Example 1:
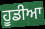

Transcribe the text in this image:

ਹੂਡੀਆ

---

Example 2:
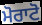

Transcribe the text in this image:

ਮੋਰਾਟੋ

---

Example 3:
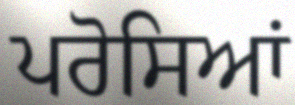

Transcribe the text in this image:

ਪਰੋਸਿਆਂ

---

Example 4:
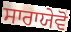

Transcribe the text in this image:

ਸਾਰਾਯੇਵੋ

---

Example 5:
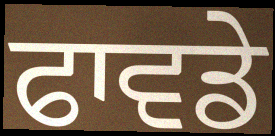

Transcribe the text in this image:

ਫਾਵਡੇ